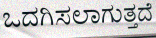
ಒದಗಿಸಲಾಗುತ್ತದೆ